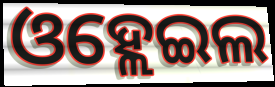
ଓହ୍ଲେଇଲ